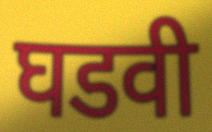
घडवी